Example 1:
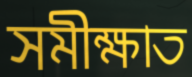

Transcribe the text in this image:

সমীক্ষাত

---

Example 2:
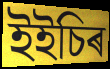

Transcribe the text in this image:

ইইচিৰ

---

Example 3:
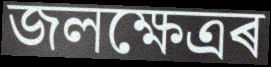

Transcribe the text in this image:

জলক্ষেত্ৰৰ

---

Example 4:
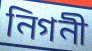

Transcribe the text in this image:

নিগনী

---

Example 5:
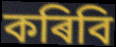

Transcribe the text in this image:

কৰিবি